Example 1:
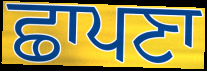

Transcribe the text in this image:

ਛਾਪਣਾ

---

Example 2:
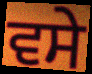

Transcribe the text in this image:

ਵਸੇ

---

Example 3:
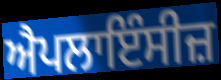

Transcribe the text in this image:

ਐਪਲਾਇੰਸੀਜ਼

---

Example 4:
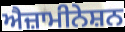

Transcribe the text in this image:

ਐਜ਼ਾਮੀਨੇਸ਼ਨ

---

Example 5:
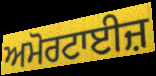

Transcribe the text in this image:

ਅਮੋਰਟਾਈਜ਼